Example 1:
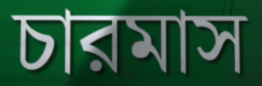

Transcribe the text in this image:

চারমাস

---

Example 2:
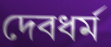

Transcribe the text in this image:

দেবধর্ম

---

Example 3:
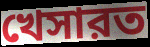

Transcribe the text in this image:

খেসারত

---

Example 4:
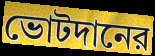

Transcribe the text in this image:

ভোটদানের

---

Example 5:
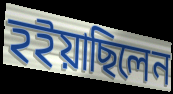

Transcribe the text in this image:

হইয়াছিলেন